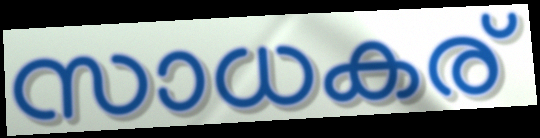
സാധകര്